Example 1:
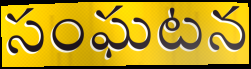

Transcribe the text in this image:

సంఘటన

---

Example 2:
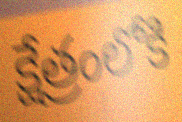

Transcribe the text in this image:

క్షేత్రంలోకి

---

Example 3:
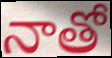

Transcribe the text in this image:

నాతో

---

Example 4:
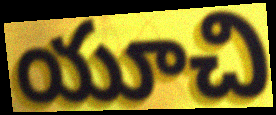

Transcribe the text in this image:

యూచి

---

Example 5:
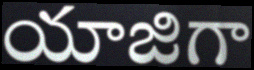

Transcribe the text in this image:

యాజిగా